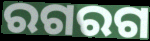
ରଗରଗ